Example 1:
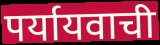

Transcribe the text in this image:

पर्यायवाची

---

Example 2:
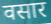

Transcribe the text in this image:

वसार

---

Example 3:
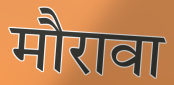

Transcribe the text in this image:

मौरावा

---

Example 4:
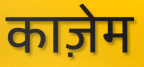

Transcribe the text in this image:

काज़ेम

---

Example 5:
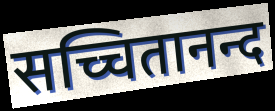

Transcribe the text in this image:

सच्चितानन्द